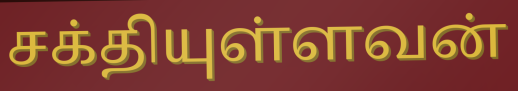
சக்தியுள்ளவன்